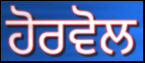
ਹੋਰਵੋਲ